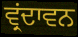
ਵ੍ਰਂਦਾਵਨ